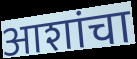
आशांचा